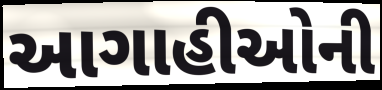
આગાહીઓની